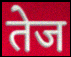
तेज